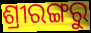
ଶ୍ରୀରଙ୍ଗରୁ